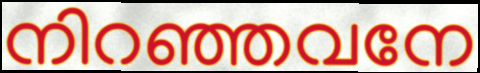
നിറഞ്ഞവനേ